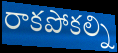
రాకపోకల్ని